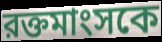
রক্তমাংসকে